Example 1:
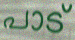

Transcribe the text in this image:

പാട്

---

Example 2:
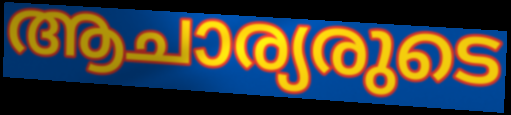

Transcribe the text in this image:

ആചാര്യരുടെ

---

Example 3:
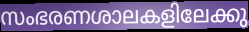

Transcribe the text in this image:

സംഭരണശാലകളിലേക്കു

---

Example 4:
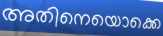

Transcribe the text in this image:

അതിനെയൊക്കെ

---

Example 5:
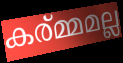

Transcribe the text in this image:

കര്മ്മമല്ല